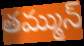
తమ్మున్